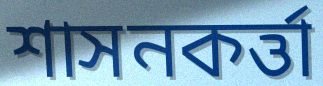
শাসনকৰ্ত্তা